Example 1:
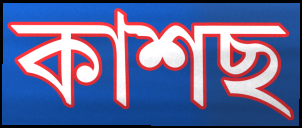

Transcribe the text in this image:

কাশছ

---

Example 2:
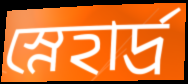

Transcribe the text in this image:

স্নেহার্দ্র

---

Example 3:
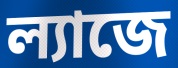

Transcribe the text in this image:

ল্যাজে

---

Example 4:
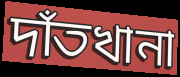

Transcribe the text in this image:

দাঁতখানা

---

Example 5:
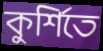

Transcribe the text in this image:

কুর্শিতে